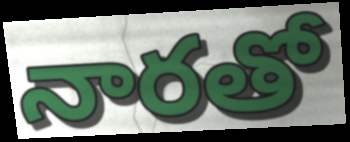
నారతో